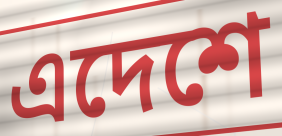
এদেশে